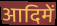
आदिमें